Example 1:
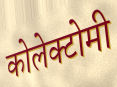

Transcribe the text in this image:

कोलेक्टोमी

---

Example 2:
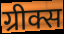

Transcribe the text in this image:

ग्रीक्स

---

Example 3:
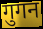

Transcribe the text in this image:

गुगन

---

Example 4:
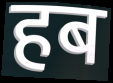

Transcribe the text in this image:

हब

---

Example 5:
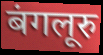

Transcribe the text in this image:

बंगलूरु